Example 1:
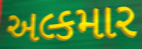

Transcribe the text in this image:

અલ્કમાર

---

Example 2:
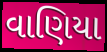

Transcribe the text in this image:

વાણિયા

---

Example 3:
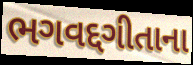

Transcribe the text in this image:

ભગવદ્દગીતાના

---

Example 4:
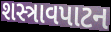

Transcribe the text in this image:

શસ્ત્રાવપાટન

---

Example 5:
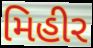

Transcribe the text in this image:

મિહીર